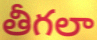
తీగలా